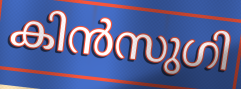
കിൻസുഗി